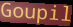
Goupil